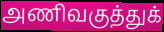
அணிவகுத்துக்